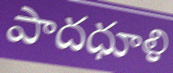
పాదధూళి